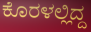
ಕೊರಳಲ್ಲಿದ್ದ